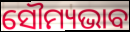
ସୌମ୍ୟଭାବ